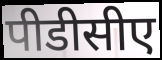
पीडीसीए